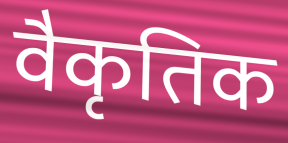
वैकृतिक